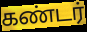
கண்டர்